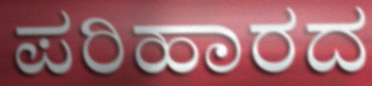
ಪರಿಹಾರದ